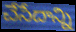
చేసేదాన్ని